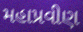
મહાપ્રવીણ